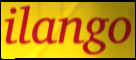
ilango